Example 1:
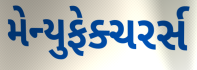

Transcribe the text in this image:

મેન્યુફેક્ચરર્સ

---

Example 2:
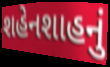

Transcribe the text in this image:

શહેનશાહનું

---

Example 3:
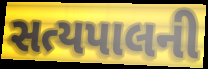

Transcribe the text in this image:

સત્યપાલની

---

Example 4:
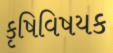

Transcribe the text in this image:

કૃષિવિષયક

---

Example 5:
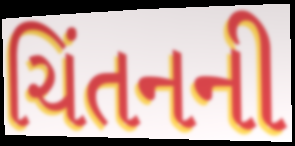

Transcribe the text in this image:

ચિંતનની